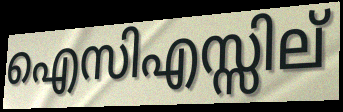
ഐസിഎസ്സില്